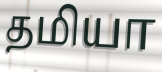
தமியா